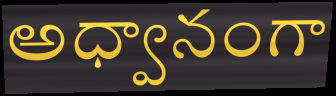
అధ్వానంగా